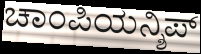
ಚಾಂಪಿಯನ್ಶಿಪ್